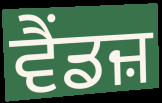
ਵੈਂਡਜ਼